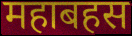
महाबहस